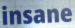
insane